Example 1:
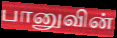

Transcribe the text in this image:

பானுவின்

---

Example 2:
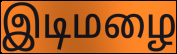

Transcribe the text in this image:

இடிமழை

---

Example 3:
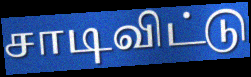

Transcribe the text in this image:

சாடிவிட்டு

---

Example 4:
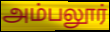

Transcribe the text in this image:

அம்பலூர்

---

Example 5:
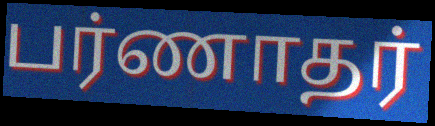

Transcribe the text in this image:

பர்ணாதர்